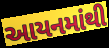
આયનમાંથી